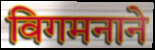
विगमनाने